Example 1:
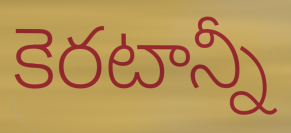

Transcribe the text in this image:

కెరటాన్నీ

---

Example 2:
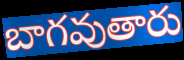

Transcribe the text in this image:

బాగవుతారు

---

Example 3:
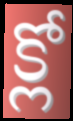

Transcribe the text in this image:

క్లో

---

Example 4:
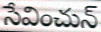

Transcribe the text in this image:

సేవించున్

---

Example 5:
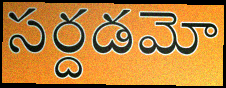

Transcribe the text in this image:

సర్దడమో